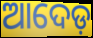
ଆଦେଡ଼